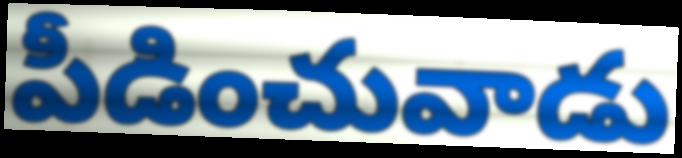
పీడించువాడు